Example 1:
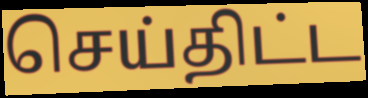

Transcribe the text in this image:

செய்திட்ட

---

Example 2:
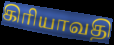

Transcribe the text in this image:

கிரியாவதி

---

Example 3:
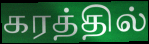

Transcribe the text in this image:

கரத்தில்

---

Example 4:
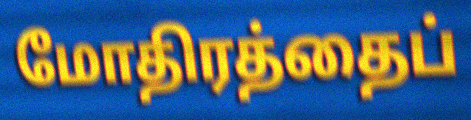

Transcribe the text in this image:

மோதிரத்தைப்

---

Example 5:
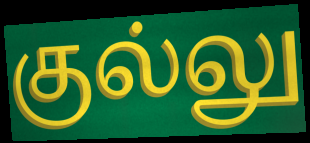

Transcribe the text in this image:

குல்லு